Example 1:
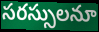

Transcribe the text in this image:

సరస్సులనూ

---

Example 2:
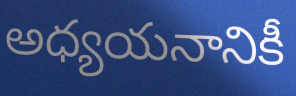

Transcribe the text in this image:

అధ్యయనానికీ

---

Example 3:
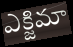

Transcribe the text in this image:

ఎక్జిమా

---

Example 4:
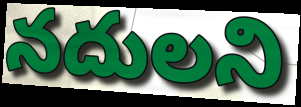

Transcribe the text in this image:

నదులని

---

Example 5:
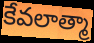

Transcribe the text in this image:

కేవలాత్మా